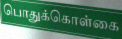
பொதுக்கொள்கை